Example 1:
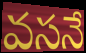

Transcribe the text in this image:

వసనే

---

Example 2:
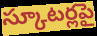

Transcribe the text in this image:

స్కూటర్లపై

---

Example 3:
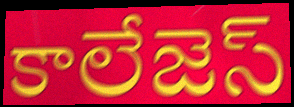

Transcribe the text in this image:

కాలేజెస్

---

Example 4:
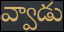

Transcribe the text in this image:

వ్వాడు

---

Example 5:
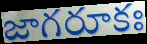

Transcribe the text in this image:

జాగరూకః